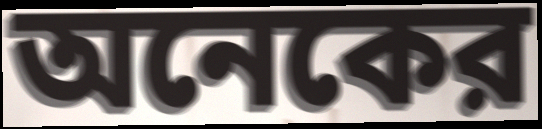
অনেকের